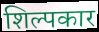
शिल्पकार